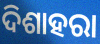
ଦିଶାହରା